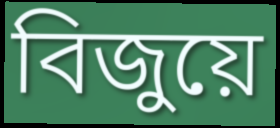
বিজুয়ে